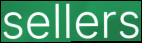
sellers